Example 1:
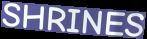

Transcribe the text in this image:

SHRINES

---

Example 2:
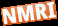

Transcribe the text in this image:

NMRI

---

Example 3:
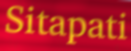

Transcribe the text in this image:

Sitapati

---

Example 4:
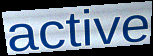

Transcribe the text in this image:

active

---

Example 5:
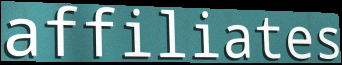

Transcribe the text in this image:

affiliates